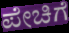
ಪೇಚಿಗೆ